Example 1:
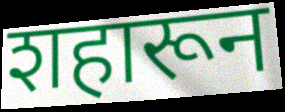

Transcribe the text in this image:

शहारून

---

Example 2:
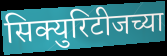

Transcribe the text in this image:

सिक्युरिटीजच्या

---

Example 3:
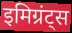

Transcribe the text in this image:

इमिग्रंट्स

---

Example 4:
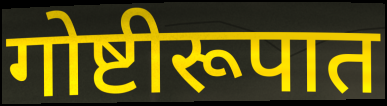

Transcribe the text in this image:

गोष्टीरूपात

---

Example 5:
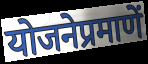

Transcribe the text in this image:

योजनेप्रमाणें